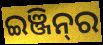
ଇଞ୍ଜିନ୍‍ର